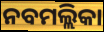
ନବମଲ୍ଲିକା